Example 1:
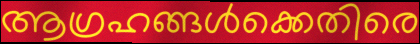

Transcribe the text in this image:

ആഗ്രഹങ്ങൾക്കെതിരെ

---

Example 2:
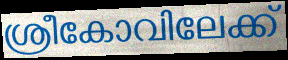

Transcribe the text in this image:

ശ്രീകോവിലേക്ക്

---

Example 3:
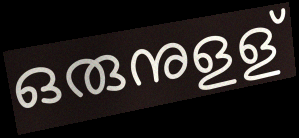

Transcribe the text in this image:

ഒരുനുളള്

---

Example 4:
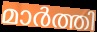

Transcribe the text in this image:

മാർത്തി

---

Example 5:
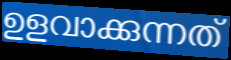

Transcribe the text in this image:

ഉളവാക്കുന്നത്